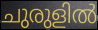
ചുരുളിൽ